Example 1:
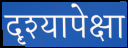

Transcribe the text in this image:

दृश्यापेक्षा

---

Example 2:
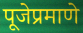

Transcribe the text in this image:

पूजेप्रमाणे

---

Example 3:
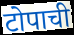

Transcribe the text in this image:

टोपाची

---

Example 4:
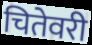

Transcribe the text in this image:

चितेवरी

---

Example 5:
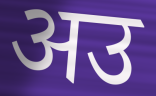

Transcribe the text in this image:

अउ